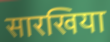
सारखिया